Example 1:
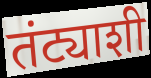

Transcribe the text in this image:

तंट्याशी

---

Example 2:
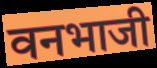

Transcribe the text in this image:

वनभाजी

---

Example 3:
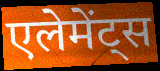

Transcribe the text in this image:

एलेमेंट्स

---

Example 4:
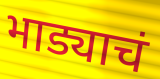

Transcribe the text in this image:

भाड्याचं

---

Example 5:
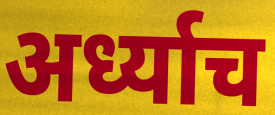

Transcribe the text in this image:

अर्ध्याच